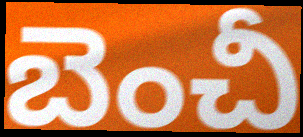
బెంచీ